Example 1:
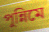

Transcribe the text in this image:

পুন্নিমে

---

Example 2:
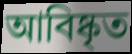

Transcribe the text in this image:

আবিষ্কৃত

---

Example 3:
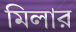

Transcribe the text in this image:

মিলার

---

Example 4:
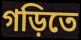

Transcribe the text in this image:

গড়িতে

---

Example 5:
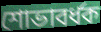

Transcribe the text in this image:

শোভাবর্ধক